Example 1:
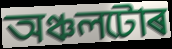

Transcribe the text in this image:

অঞ্চলটোৰ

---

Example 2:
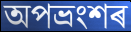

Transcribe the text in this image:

অপভ্ৰংশৰ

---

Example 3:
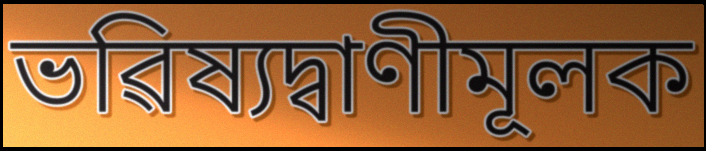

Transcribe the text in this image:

ভৱিষ্যদ্বাণীমূলক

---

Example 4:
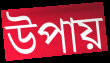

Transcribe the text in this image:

উপায়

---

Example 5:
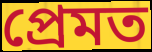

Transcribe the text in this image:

প্ৰেমত